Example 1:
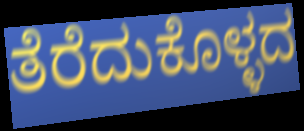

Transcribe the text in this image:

ತೆರೆದುಕೊಳ್ಳದ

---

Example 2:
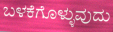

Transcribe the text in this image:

ಬಳಕೆಗೊಳ್ಳುವುದು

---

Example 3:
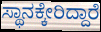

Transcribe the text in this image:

ಸ್ಥಾನಕ್ಕೇರಿದ್ದಾರೆ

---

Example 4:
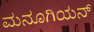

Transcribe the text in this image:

ಮನೂಗಿಯನ್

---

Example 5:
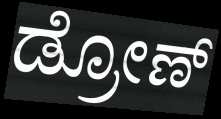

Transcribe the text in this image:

ಡ್ರೋಣ್